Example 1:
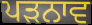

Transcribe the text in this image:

ਪੜਨਾਵ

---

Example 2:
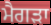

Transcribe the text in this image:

ਮੈਗੜਾ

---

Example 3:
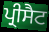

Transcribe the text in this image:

ਪ੍ਰੀਸੈਟ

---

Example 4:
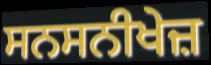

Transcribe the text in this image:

ਸਨਸਨੀਖੇਜ਼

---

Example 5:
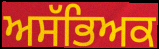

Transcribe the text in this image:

ਅਸੱਭਿਅਕ